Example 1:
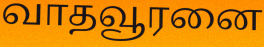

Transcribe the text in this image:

வாதவூரனை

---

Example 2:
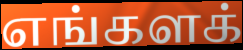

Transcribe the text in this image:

எங்களக்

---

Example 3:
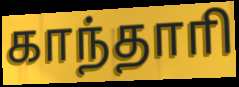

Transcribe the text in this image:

காந்தாரி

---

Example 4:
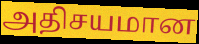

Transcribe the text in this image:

அதிசயமான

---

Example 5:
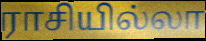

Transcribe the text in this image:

ராசியில்லா